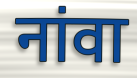
नांवा